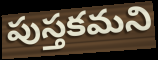
పుస్తకమని